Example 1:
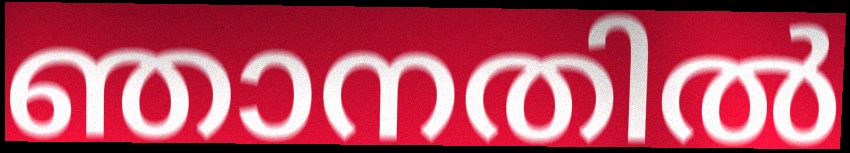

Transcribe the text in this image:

ഞാനതിൽ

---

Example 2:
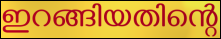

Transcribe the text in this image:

ഇറങ്ങിയതിന്റെ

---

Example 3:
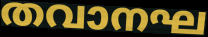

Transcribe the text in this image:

തവാനഘ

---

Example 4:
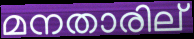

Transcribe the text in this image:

മനതാരില്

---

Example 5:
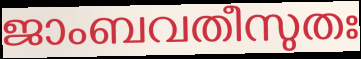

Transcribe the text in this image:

ജാംബവതീസുതഃ